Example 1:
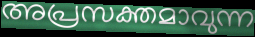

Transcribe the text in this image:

അപ്രസക്തമാവുന്ന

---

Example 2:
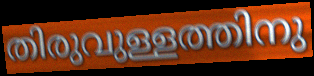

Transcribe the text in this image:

തിരുവുള്ളത്തിനു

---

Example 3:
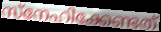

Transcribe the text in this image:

സ്നേഹിക്കേണ്ടത്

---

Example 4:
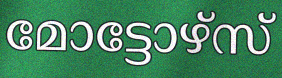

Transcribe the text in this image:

മോട്ടോഴ്സ്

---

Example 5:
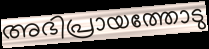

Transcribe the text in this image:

അഭിപ്രായത്തോടു